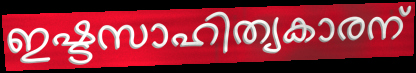
ഇഷ്ടസാഹിത്യകാരന്